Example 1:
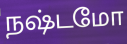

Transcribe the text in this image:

நஷ்டமோ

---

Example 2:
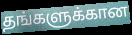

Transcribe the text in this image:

தங்களுக்கான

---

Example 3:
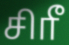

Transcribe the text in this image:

சிரீ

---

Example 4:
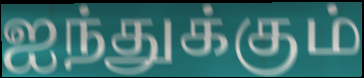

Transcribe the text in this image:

ஐந்துக்கும்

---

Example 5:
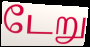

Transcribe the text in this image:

டேறு